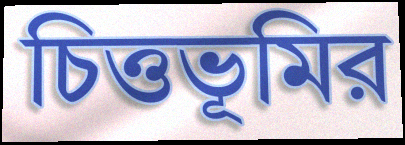
চিত্তভূমির